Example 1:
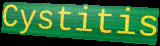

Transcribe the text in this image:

Cystitis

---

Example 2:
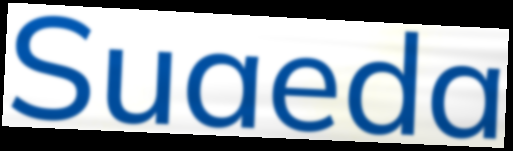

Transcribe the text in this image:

Suaeda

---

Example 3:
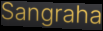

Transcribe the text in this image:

Sangraha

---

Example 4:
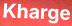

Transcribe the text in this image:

Kharge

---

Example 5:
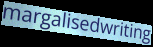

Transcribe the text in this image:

margalisedwriting